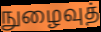
நுழைவுத்